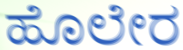
ಹೊಲೇರ